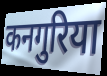
कनगुरिया